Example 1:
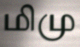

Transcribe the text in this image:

மிமு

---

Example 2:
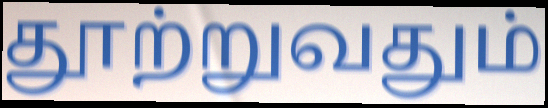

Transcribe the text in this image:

தூற்றுவதும்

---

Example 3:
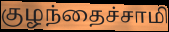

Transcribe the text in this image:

குழந்தைச்சாமி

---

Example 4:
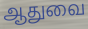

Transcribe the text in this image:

ஆதுவை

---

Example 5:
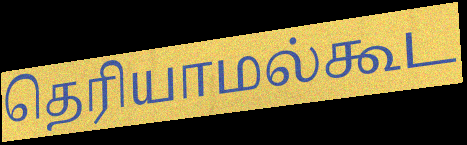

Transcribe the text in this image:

தெரியாமல்கூட